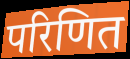
परिणित